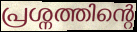
പ്രശ്നത്തിന്റെ